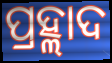
ପ୍ରହ୍ଲାଦ